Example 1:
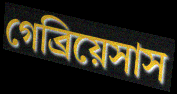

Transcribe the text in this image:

গেব্রিয়েসাস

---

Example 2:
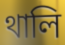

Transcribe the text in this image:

থালি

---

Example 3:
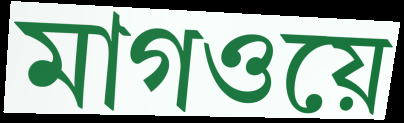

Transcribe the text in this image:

মাগওয়ে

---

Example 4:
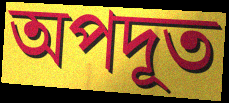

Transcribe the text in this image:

অপদূত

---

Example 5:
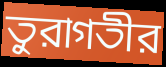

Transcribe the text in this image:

তুরাগতীর